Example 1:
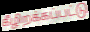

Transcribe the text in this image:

கீழிறக்கப்பட்டு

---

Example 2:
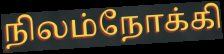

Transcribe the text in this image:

நிலம்நோக்கி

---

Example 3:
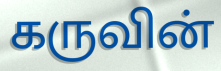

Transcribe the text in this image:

கருவின்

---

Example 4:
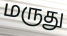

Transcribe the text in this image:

மருது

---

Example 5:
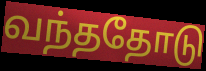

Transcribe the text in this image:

வந்ததோடு